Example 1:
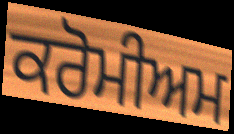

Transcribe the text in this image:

ਕਰੋਮੀਅਮ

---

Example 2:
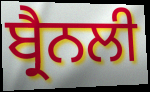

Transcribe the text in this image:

ਬ੍ਰੈਨਲੀ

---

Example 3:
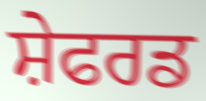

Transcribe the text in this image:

ਸ਼ੇਫਰਡ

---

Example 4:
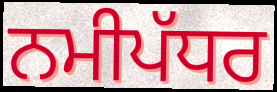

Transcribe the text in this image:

ਨਮੀਪੱਧਰ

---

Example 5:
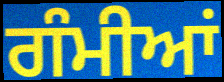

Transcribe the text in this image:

ਗੰਮੀਆਂ